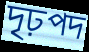
দৃঢ়পদ